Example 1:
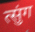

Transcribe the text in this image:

त्सुंग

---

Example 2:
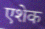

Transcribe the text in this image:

एशेक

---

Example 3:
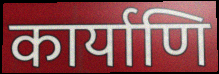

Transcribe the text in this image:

कार्याणि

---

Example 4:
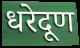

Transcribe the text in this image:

धरेदूण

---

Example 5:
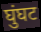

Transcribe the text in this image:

घुंघट